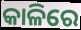
କାଳିରେ